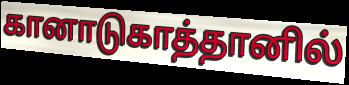
கானாடுகாத்தானில்